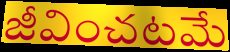
జీవించటమే